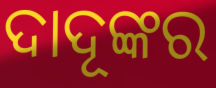
ଦାଦୂଙ୍କର